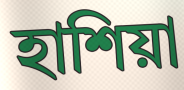
হাশিয়া